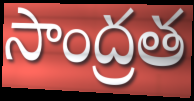
సాంద్రత